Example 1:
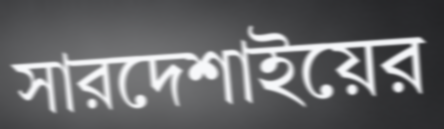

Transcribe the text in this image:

সারদেশাইয়ের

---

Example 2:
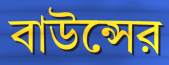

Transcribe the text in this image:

বাউন্সের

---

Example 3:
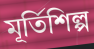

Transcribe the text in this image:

মূর্তিশিল্প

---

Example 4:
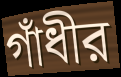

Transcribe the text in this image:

গাঁধীর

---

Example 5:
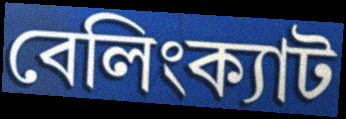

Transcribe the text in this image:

বেলিংক্যাট